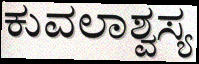
ಕುವಲಾಶ್ವಸ್ಯ